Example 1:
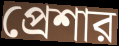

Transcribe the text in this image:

প্রেশার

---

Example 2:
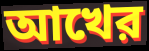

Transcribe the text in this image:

আখের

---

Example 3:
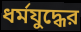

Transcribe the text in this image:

ধর্মযুদ্ধের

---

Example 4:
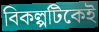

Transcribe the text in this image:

বিকল্পটিকেই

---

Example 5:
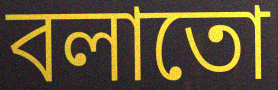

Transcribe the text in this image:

বলাতো